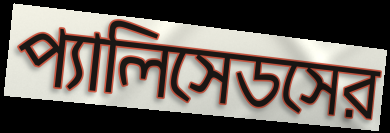
প্যালিসেডসের